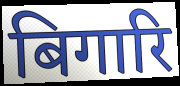
बिगारि